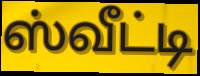
ஸ்வீட்டி